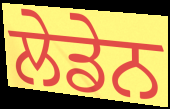
ਲੇਡੇਨ